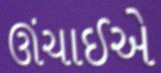
ઊંચાઈએ